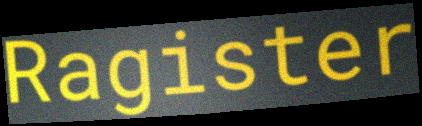
Ragister